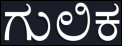
ಗುಲಿಕ